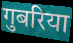
गुबरिया